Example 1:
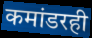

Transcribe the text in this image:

कमांडरही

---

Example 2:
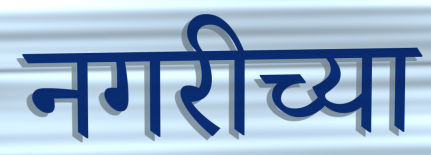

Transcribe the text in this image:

नगरीच्या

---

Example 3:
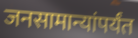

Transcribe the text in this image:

जनसामान्यांपर्यंत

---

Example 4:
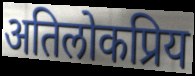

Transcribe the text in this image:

अतिलोकप्रिय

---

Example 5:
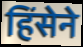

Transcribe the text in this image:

हिंसेने